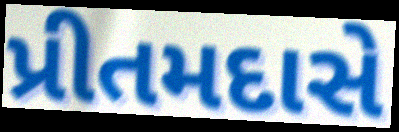
પ્રીતમદાસે